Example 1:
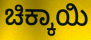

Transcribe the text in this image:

ಚಿಕ್ಕಾಯಿ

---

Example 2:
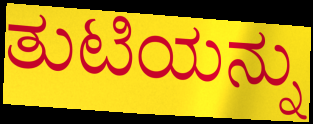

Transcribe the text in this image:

ತುಟಿಯನ್ನು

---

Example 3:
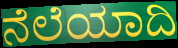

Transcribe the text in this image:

ನೆಲೆಯಾದಿ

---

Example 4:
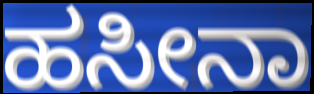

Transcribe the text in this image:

ಹಸೀನಾ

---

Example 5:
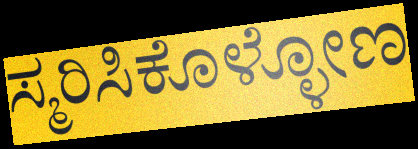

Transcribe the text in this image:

ಸ್ಮರಿಸಿಕೊಳ್ಳೋಣ